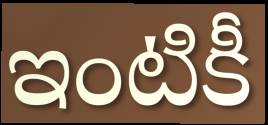
ఇంటికీ